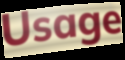
Usage